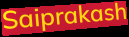
Saiprakash